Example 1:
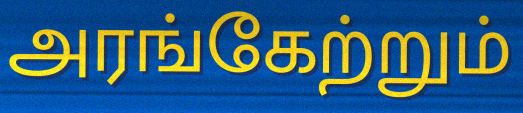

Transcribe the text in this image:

அரங்கேற்றும்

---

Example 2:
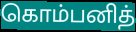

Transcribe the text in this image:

கொம்பனித்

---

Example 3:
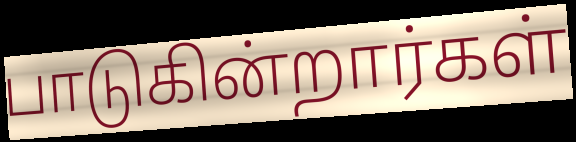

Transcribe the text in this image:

பாடுகின்றார்கள்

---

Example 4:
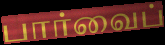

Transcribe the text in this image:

பார்வைப்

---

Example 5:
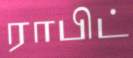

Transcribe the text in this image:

ராபிட்